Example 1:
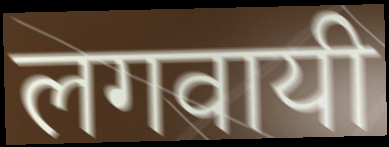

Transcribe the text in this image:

लगवायी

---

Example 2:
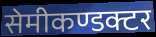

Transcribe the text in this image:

सेमीकण्डक्टर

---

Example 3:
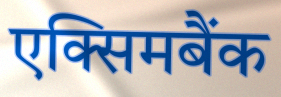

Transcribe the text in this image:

एक्सिमबैंक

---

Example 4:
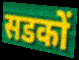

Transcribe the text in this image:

सडकों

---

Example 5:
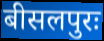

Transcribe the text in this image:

बीसलपुरः